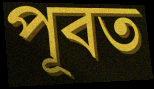
পূবত